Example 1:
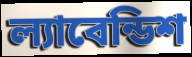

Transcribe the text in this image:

ল্যাবেন্ডিশ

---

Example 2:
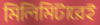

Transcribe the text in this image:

মিলিমিটারেই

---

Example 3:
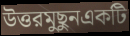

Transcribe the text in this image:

উত্তরমুছুনএকটি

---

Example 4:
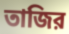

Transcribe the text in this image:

তাজির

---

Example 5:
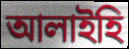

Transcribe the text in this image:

আলাইহি